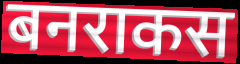
बनराकस